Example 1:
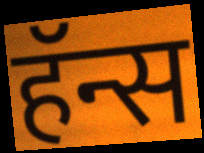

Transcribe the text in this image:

हॅन्स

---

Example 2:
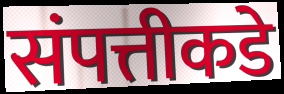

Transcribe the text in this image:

संपत्तीकडे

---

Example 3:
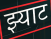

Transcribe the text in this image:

झ्याट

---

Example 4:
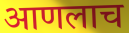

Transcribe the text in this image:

आणलाच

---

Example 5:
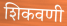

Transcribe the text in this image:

शिकवणी